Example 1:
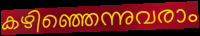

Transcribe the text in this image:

കഴിഞ്ഞെന്നുവരാം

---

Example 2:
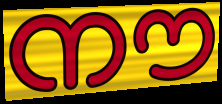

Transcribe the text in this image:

നൗ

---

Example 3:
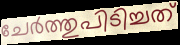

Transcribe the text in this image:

ചേർത്തുപിടിച്ചത്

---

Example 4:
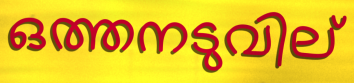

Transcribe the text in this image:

ഒത്തനടുവില്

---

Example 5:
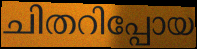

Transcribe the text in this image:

ചിതറിപ്പോയ